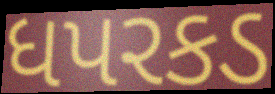
ધપરકડ